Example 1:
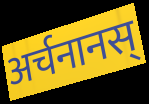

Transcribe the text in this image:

अर्चनानस्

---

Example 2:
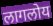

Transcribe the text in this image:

लागलोय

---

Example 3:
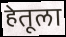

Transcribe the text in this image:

हेतूला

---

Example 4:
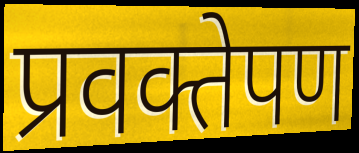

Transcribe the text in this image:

प्रवक्तेपण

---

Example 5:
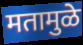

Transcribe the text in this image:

मतामुळे